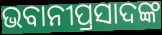
ଭବାନୀପ୍ରସାଦଙ୍କ